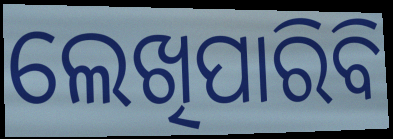
ଲେଖିପାରିବି